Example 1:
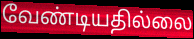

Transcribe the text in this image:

வேண்டியதில்லை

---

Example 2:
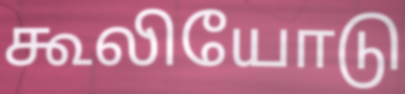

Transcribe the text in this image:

கூலியோடு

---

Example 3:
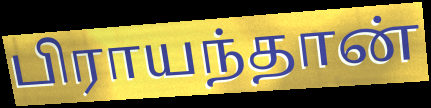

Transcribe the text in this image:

பிராயந்தான்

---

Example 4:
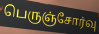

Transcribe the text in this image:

பெருஞ்சோர்வு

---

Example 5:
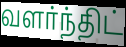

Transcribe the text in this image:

வளர்ந்திட்